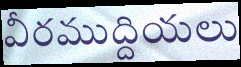
వీరముద్దియలు